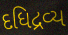
દધિદ્રવ્ય